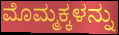
ಮೊಮ್ಮಕ್ಕಳನ್ನು